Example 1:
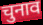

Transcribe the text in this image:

चुनाव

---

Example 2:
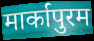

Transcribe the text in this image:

मार्कापुरम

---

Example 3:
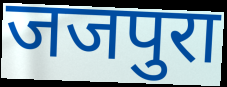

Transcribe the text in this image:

जजपुरा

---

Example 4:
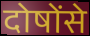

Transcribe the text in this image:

दोषोंसे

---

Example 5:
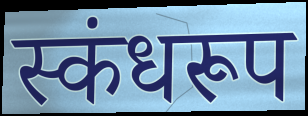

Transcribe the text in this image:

स्कंधरूप